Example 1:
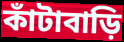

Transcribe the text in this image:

কাঁটাবাড়ি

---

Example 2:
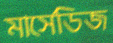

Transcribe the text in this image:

মার্সেডিজ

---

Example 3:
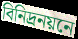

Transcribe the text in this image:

বিনিদ্রনয়নে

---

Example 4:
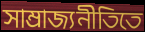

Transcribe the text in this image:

সাম্রাজ্যনীতিতে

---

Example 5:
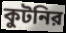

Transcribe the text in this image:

কুটনির